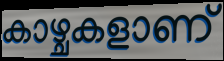
കാഴ്ചകളാണ്